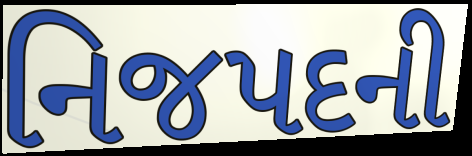
નિજપદની